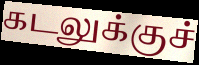
கடலுக்குச்